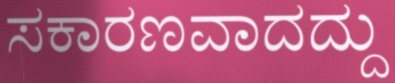
ಸಕಾರಣವಾದದ್ದು